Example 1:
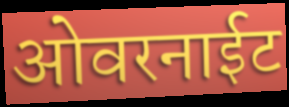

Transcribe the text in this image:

ओवरनाईट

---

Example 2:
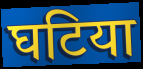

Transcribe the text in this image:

घटिया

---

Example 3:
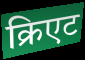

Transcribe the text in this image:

क्रिएट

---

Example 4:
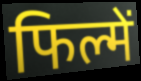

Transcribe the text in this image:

फिल्में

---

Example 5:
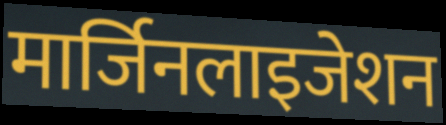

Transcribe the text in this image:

मार्जिनलाइजेशन